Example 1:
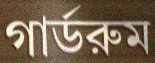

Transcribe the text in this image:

গার্ডরুম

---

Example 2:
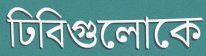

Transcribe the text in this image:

ঢিবিগুলোকে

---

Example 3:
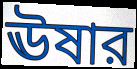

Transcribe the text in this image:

ঊষার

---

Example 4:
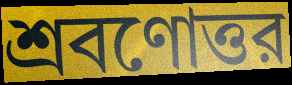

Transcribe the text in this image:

শ্রবণোত্তর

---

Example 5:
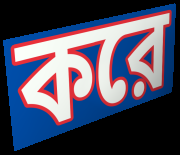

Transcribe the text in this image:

করে